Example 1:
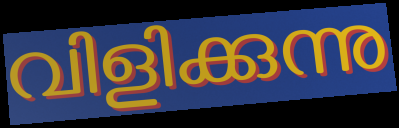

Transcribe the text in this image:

വിളിക്കുന്നു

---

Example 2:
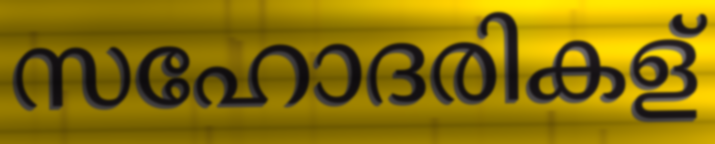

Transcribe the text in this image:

സഹോദരികള്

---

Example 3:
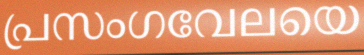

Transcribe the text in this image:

പ്രസംഗവേലയെ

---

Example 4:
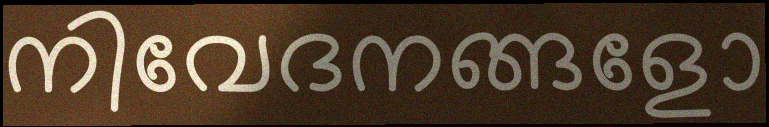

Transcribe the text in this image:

നിവേദനങ്ങളോ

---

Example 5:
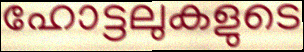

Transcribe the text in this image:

ഹോട്ടലുകളുടെ